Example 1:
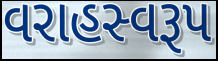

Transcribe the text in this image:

વરાહસ્વરૂપ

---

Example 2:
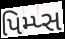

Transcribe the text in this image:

પિમ્પ્સ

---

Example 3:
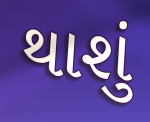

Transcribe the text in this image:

થાશું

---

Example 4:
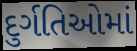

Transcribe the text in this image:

દુર્ગતિઓમાં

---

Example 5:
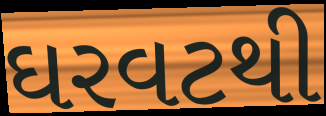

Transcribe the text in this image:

ઘરવટથી